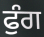
ਫੁੰਗ